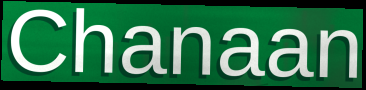
Chanaan